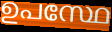
ഉപസ്ഥേ